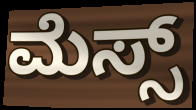
ಮೆಸ್ಸ್